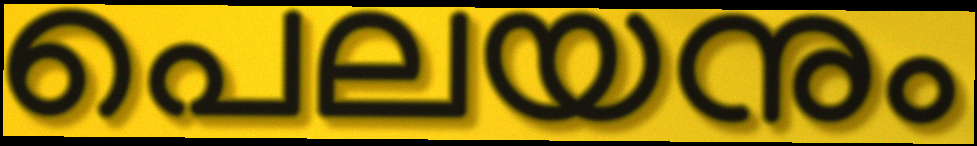
പെലയനും